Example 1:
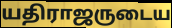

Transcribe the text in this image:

யதிராஜருடைய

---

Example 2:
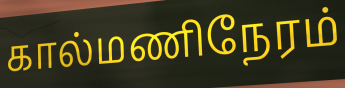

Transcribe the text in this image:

கால்மணிநேரம்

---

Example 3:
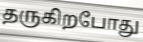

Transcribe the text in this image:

தருகிறபோது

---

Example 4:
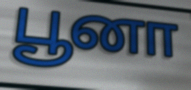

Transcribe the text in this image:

பூனா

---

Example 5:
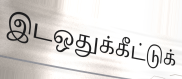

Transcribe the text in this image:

இடஒதுக்கீட்டுக்